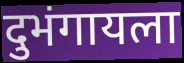
दुभंगायला